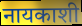
नायकाशी